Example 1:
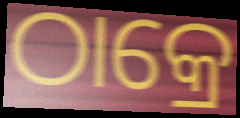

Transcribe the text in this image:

ଠାକ୍ରେ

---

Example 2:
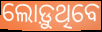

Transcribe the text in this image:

ଲୋଡ଼ୁଥିବେ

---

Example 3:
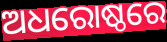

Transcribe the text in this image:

ଅଧରୋଷ୍ଠରେ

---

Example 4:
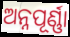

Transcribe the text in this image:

ଅନ୍ନପୂର୍ଣ୍ଣା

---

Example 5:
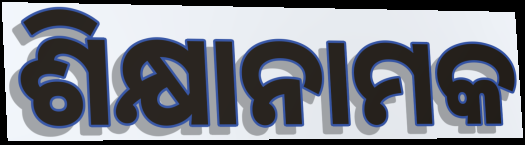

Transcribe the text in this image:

ଶିକ୍ଷାନାମକ